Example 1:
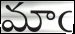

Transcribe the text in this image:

మాఁ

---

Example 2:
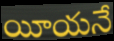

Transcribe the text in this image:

యీయనే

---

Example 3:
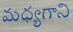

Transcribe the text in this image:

మధ్యగాని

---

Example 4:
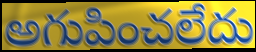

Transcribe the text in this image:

అగుపించలేదు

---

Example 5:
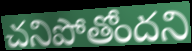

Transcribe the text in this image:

చనిపోతోందని